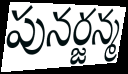
పునర్జన్మ